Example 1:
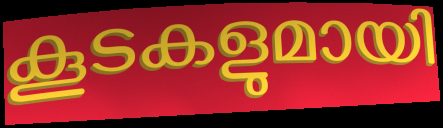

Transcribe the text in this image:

കൂടകളുമായി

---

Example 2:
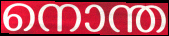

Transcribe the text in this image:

നൊന്ത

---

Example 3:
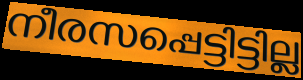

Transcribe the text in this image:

നീരസപ്പെട്ടിട്ടില്ല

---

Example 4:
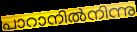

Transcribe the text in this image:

പാറാനിൽനിന്നു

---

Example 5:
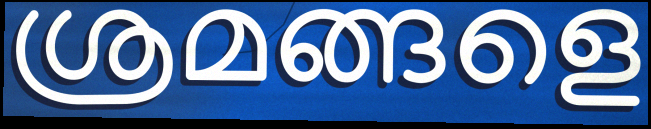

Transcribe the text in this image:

ശ്രമങ്ങളെ